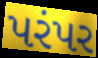
પરંપર